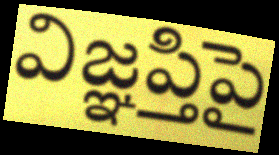
విజ్ఞప్తిపై